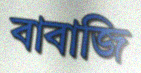
বাবাজি